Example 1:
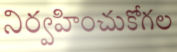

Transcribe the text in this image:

నిర్వహించుకోగల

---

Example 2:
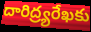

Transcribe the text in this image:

దారిద్ర్యరేఖకు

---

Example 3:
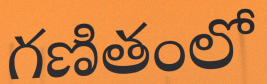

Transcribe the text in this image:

గణితంలో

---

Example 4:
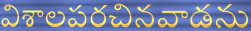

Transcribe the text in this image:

విశాలపరచినవాడను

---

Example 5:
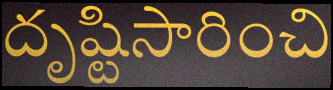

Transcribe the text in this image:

దృష్టిసారించి